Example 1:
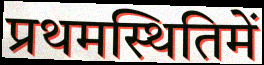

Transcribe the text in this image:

प्रथमस्थितिमें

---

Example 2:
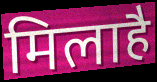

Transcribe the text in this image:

मिलाहै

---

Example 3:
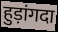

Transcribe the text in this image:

हुड़ांगदा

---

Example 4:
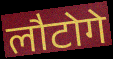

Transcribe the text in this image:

लौटोगे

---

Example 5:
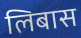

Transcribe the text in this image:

लिबास